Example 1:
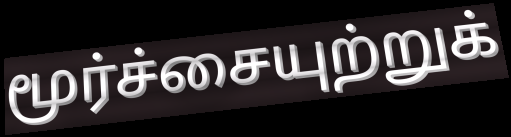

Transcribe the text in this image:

மூர்ச்சையுற்றுக்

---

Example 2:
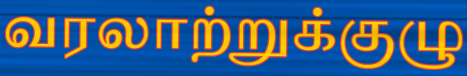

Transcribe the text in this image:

வரலாற்றுக்குழு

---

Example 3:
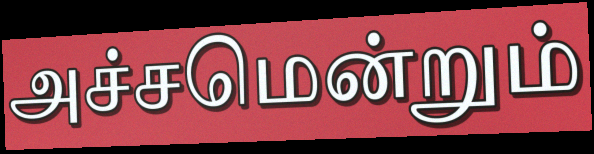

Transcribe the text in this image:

அச்சமென்றும்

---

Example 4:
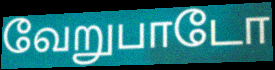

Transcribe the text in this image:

வேறுபாடோ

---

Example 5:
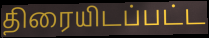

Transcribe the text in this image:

திரையிடப்பட்ட